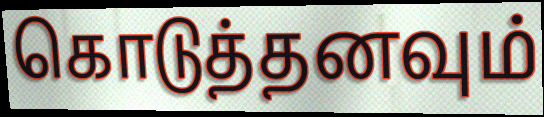
கொடுத்தனவும்